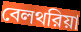
বেলথরিয়া